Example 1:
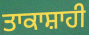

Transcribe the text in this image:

ਤਾਕਾਸ਼ਾਹੀ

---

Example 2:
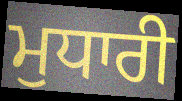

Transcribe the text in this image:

ਮੁਧਾਰੀ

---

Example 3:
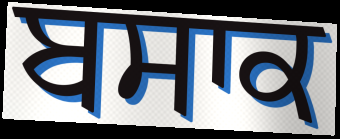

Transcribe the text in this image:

ਬਸਾਕ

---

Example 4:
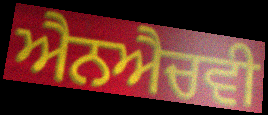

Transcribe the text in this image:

ਐਨਐਚਵੀ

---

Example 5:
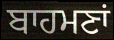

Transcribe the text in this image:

ਬਾਹਮਣਾਂ